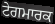
ਟੇਗਮਾਰਕ